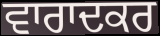
ਵਾਰਾਦਕਰ